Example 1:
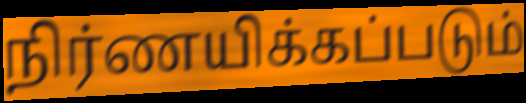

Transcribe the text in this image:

நிர்ணயிக்கப்படும்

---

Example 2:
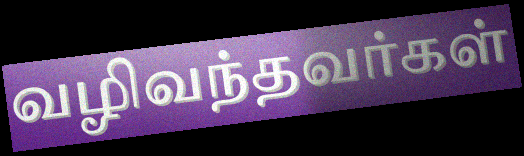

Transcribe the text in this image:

வழிவந்தவர்கள்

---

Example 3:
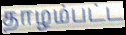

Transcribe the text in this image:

தாழம்பட்ட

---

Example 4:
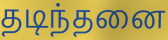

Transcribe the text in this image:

தடிந்தனை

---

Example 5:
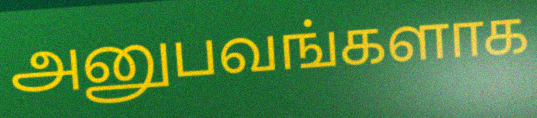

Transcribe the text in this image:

அனுபவங்களாக